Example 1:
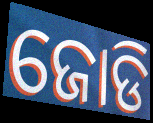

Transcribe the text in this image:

ଜୋଡି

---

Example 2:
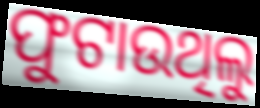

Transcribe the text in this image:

ଫୁଟାଉଥିଲୁ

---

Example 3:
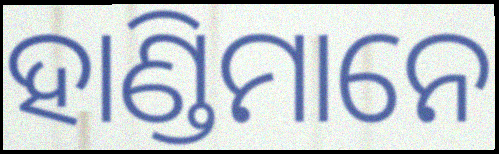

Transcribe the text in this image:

ହାଣ୍ଡିମାନେ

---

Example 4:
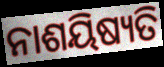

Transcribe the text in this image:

ନାଶୟିଷ୍ୟତି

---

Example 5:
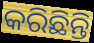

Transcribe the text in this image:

କରିଛିନ୍ତି